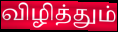
விழித்தும்